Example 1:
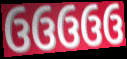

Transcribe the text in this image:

ઉઉઉઉઉ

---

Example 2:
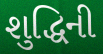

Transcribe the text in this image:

શુદ્ધિની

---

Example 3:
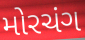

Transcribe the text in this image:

મોરચંગ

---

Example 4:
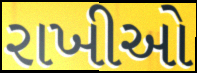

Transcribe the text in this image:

રાખીઓ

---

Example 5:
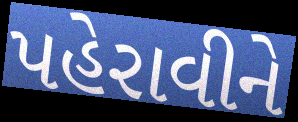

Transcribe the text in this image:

પહેરાવીને